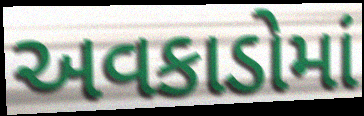
અવકાડોમાં